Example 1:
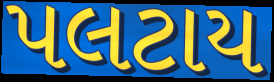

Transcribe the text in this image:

પલટાય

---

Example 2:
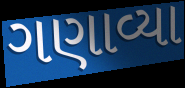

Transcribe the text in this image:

ગણાવ્યા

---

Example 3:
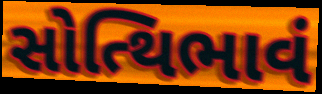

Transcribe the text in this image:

સોત્થિભાવં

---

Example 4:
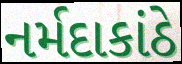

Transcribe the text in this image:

નર્મદાકાંઠે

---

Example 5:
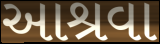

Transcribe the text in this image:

આશ્રવા